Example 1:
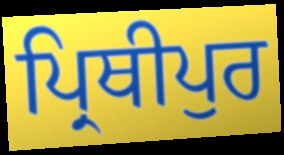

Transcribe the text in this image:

ਪ੍ਰਿਥੀਪੁਰ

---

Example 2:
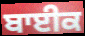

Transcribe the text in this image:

ਬਾਈਕ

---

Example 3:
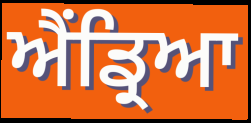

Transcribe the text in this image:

ਐਂਡ੍ਰਿਆ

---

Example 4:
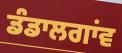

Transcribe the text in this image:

ਡੰਡਾਲਗਾਂਵ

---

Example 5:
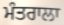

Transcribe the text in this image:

ਮੰਤਰਾਲਾ